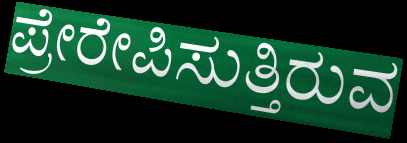
ಪ್ರೇರೇಪಿಸುತ್ತಿರುವ